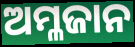
ଅମ୍ଳଜାନ